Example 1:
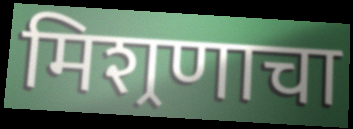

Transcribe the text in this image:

मिश्रणाचा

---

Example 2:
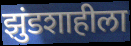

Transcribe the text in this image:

झुंडशाहीला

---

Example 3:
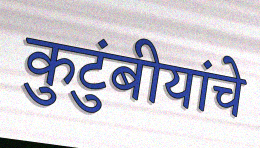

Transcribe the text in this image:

कुटुंबीयांचे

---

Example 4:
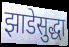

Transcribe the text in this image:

झाडेसुद्धा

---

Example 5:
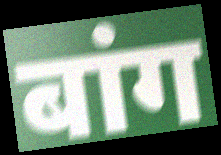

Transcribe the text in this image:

बांग